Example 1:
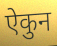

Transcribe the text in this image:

ऐकुन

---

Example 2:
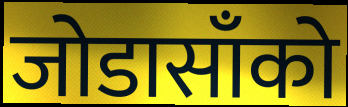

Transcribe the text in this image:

जोडासाँको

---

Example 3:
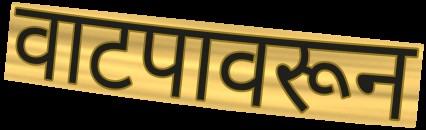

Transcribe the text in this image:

वाटपावरून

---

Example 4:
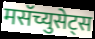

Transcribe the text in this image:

मसॅच्युसेट्स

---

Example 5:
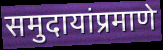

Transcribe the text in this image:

समुदायांप्रमाणे